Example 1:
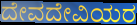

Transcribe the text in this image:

ದೇವದೇವಿಯರ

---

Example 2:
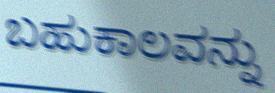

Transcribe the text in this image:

ಬಹುಕಾಲವನ್ನು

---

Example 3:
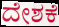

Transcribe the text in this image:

ದೇಶಕೆ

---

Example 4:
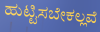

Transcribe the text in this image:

ಹುಟ್ಟಿಸಬೇಕಲ್ಲವೆ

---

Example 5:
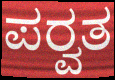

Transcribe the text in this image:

ಪರ್‍ವತ